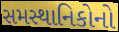
સમસ્થાનિકોનો